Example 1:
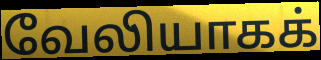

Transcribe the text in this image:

வேலியாகக்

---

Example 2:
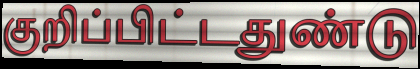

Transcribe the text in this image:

குறிப்பிட்டதுண்டு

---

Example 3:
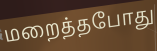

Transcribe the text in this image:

மறைத்தபோது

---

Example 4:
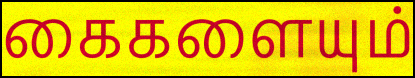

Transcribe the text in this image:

கைகளையும்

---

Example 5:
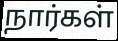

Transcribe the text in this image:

நார்கள்